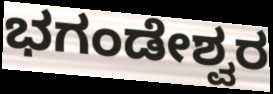
ಭಗಂಡೇಶ್ವರ